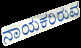
ನಾಯಕರಿರುವ